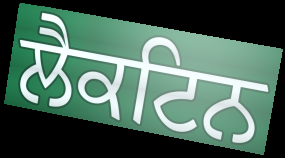
ਲੈਕਟਿਨ